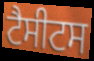
ਟੈਸੀਟਸ